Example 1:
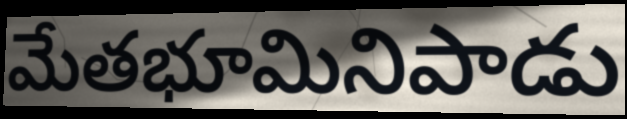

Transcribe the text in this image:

మేతభూమినిపాడు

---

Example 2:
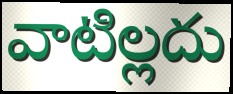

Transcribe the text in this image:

వాటిల్లదు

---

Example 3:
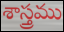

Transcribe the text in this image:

శాస్త్రము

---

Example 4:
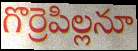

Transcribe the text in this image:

గొర్రెపిల్లనూ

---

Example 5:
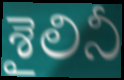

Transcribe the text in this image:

శైలినీ